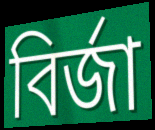
বির্জা